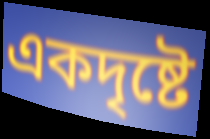
একদৃষ্টে